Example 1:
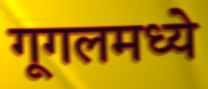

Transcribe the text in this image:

गूगलमध्ये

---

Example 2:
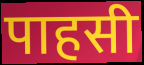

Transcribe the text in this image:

पाहसी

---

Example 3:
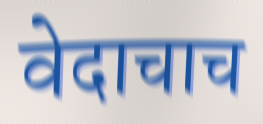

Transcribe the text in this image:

वेदाचाच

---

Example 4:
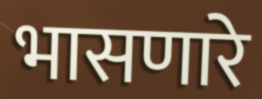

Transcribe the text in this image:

भासणारे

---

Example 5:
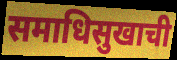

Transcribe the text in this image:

समाधिसुखाची